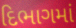
દિભાગમાં